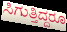
ಸಿಗುತ್ತಿದ್ದರೂ